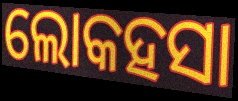
ଲୋକହସା